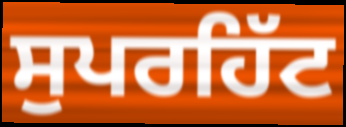
ਸੁਪਰਹਿੱਟ